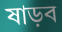
ষাড়ব